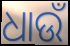
ଧାଉଁ